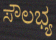
ಸೌಲಭ್ಯ